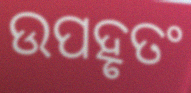
ଉପହୃତଂ